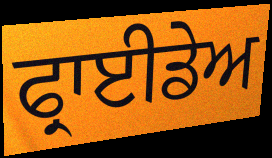
ਫ੍ਰਾਈਡੇਅ